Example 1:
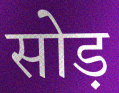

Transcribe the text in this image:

सोड़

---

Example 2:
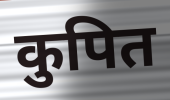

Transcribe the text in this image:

कुपित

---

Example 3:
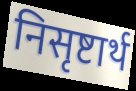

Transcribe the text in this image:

निसृष्टार्थ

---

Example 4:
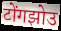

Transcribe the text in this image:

टोंगझोउ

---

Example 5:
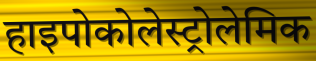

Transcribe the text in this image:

हाइपोकोलेस्ट्रोलेमिक